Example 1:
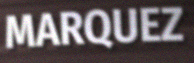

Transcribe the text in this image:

MARQUEZ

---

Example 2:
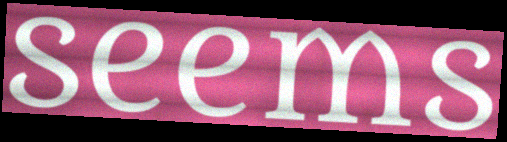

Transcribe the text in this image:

seems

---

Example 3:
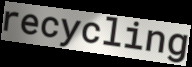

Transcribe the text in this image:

recycling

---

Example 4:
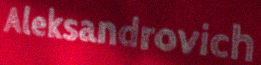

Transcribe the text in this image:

Aleksandrovich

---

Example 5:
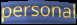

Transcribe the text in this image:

personal